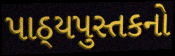
પાઠ્યપુસ્તકનો